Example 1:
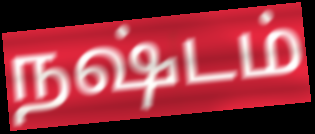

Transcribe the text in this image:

நஷ்டம்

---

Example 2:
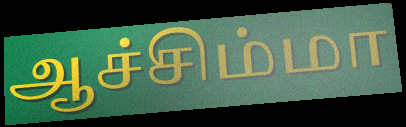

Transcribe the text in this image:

ஆச்சிம்மா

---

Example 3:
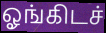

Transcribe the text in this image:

ஓங்கிடச்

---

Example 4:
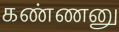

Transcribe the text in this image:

கண்ணனு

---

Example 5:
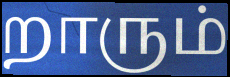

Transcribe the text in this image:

றாரும்